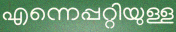
എന്നെപ്പറ്റിയുള്ള